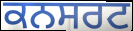
ਕਨਸਰਟ